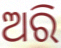
ଅରି